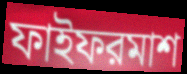
ফাইফরমাশ